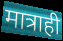
मात्राही